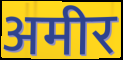
अमीर